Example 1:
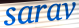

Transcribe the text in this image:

sarav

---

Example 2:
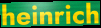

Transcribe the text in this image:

heinrich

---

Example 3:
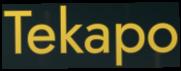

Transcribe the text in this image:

Tekapo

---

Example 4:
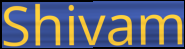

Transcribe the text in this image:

Shivam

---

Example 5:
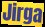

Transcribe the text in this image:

Jirga